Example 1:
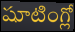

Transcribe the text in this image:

షూటింగ్లో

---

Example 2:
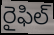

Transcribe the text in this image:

రైఫిల్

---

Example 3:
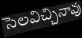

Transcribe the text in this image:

సెలవిచ్చినావు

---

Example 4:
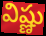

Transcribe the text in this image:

విష్ణు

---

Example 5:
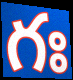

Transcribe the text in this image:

గః